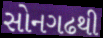
સોનગઢથી